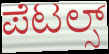
ಪೆಟಲ್ಸ್